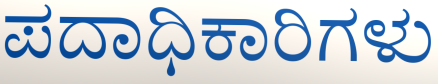
ಪದಾಧಿಕಾರಿಗಳು